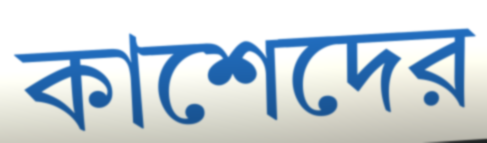
কাশেদের